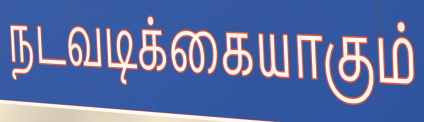
நடவடிக்கையாகும்